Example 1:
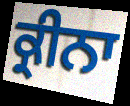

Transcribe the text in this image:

ਕ੍ਰੀਨਾ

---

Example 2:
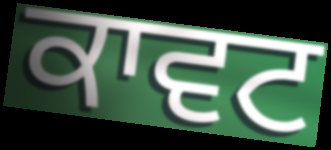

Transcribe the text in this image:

ਕਾਵਟ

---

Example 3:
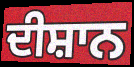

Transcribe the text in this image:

ਦੀਸ਼ਾਨ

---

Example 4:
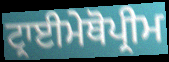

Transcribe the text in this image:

ਟ੍ਰਾਈਮੇਥੋਪ੍ਰੀਮ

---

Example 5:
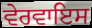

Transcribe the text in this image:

ਵੇਰਵਾਇਸ